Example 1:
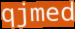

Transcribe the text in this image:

qjmed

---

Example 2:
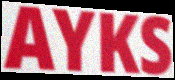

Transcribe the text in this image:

AYKS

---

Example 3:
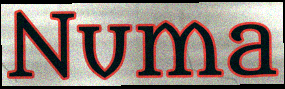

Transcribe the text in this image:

Numa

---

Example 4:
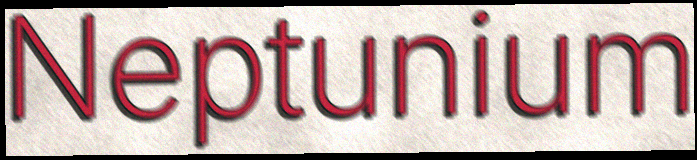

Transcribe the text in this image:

Neptunium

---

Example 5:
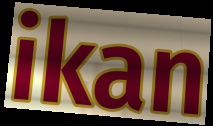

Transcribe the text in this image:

ikan